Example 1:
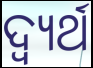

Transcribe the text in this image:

ଦ୍ୱ୍ୟର୍ଥ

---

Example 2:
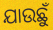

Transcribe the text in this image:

ଯାଉଛୁଁ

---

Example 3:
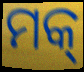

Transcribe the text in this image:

ମକ୍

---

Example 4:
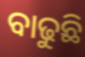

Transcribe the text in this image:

ବାଢୁଛି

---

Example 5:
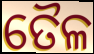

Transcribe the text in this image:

ତୈଳ